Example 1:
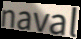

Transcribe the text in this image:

naval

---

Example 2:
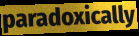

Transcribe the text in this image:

paradoxically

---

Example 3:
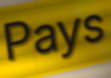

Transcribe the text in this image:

Pays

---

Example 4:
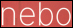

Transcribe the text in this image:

nebo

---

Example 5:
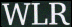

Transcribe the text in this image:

WLR